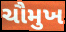
ચૌમુખ